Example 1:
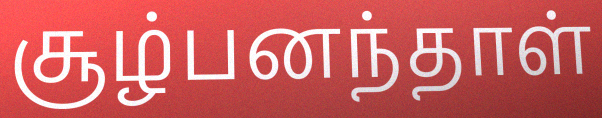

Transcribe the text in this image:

சூழ்பனந்தாள்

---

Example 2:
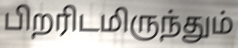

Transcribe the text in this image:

பிறரிடமிருந்தும்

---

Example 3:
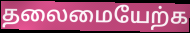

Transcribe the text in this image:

தலைமையேற்க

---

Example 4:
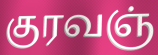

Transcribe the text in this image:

குரவஞ்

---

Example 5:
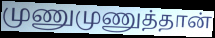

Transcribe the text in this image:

முணுமுணுத்தான்